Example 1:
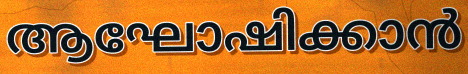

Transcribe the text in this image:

ആഘോഷിക്കാൻ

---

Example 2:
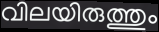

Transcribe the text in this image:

വിലയിരുത്തും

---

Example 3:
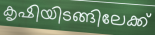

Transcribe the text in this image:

കൃഷിയിടങ്ങിലേക്ക്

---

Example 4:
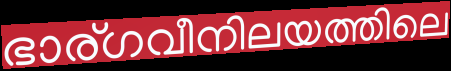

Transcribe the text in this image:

ഭാര്ഗവീനിലയത്തിലെ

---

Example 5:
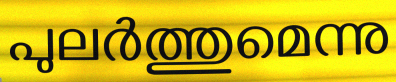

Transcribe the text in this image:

പുലർത്തുമെന്നു